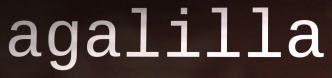
agalilla